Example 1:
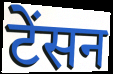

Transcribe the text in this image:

टेंसन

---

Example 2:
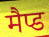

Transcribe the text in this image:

मैप्ड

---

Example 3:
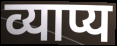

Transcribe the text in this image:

व्याप्य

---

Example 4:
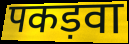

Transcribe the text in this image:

पकड़वा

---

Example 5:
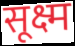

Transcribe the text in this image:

सूक्ष्‍म